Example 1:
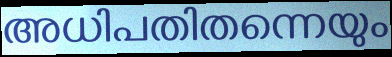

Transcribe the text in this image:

അധിപതിതന്നെയും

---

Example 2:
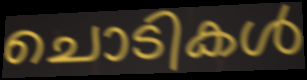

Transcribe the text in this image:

ചൊടികൾ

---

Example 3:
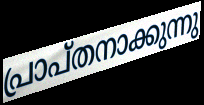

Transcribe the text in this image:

പ്രാപ്തനാക്കുന്നു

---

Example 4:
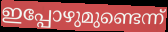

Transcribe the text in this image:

ഇപ്പോഴുമുണ്ടെന്ന്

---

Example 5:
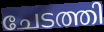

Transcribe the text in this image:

ചേടത്തി